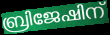
ബ്രിജേഷിന്